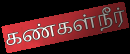
கண்கள்நீர்